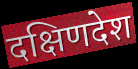
दक्षिणदेश